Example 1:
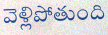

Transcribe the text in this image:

వెళ్లిపోతుంది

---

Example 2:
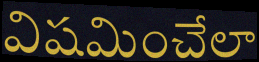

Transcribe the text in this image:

విషమించేలా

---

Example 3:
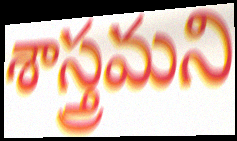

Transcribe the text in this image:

శాస్త్రమని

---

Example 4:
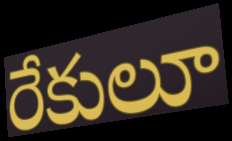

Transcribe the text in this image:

రేకులూ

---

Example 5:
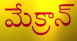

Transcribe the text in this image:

మేక్రాన్